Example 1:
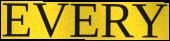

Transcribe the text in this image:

EVERY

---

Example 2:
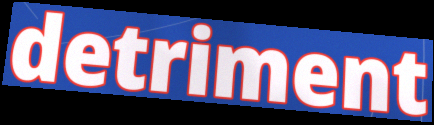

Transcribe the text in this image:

detriment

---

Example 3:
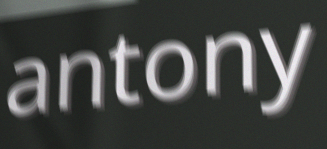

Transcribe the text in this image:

antony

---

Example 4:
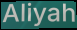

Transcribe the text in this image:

Aliyah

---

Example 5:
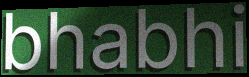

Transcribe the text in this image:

bhabhi